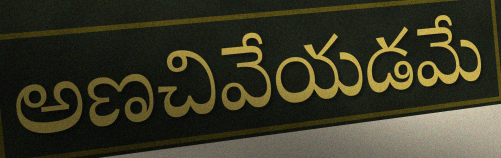
అణచివేయడమే